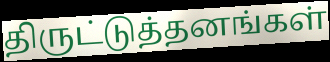
திருட்டுத்தனங்கள்